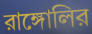
রাঙ্গোলির